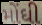
મોંઘી